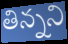
తిన్నని